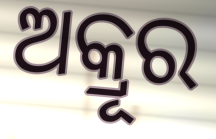
ଅକ୍ରୂର